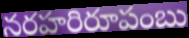
నరహరిరూపంబు